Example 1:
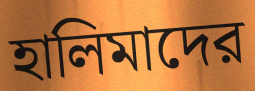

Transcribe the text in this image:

হালিমাদের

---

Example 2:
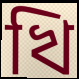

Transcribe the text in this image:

খি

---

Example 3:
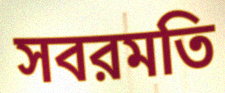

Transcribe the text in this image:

সবরমতি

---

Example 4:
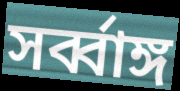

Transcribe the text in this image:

সর্ব্বাঙ্গ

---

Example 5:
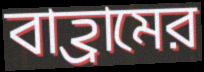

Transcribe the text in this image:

বাহ্রামের